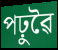
পঢ়ুৱৈ